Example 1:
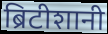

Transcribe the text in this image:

ब्रिटीशानी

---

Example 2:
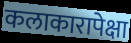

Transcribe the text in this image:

कलाकारापेक्षा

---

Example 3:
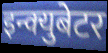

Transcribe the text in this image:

इन्क्‍युबेटर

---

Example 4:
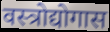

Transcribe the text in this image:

वस्त्रोद्योगास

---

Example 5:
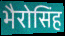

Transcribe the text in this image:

भैरोसिंह